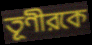
তূণীরকে